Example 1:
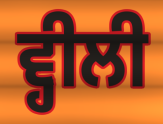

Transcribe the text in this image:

ਵ੍ਹੀਲੀ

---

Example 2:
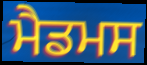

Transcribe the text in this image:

ਮੈਡਮਸ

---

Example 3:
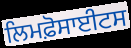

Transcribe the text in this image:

ਲਿਮਫ਼ੋਸਾਈਟਸ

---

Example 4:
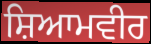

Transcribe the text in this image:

ਸ਼ਿਆਮਵੀਰ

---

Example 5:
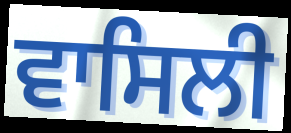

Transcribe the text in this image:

ਵਾਸਿਲੀ